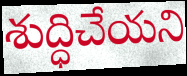
శుద్ధిచేయని